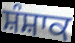
ਸ਼ੰਸ਼ਾਕ